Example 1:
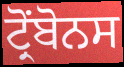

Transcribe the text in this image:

ਟ੍ਰੋਂਬੋਨਸ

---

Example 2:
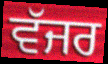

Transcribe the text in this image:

ਵੱਜਰ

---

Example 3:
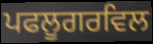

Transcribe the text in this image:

ਪਫਲੂਗਰਵਿਲ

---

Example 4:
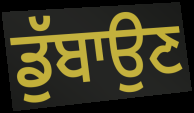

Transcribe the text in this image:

ਡੁੱਬਾਉਣ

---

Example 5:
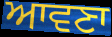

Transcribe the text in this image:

ਆਵਣਾ